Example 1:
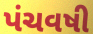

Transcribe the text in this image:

પંચવષી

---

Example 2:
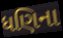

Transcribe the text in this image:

ધણિના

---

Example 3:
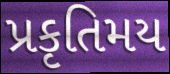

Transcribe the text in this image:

પ્રકૃતિમય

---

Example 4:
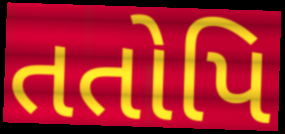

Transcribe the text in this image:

તતોપિ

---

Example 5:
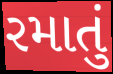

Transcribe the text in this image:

રમાતું